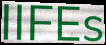
IIFEs